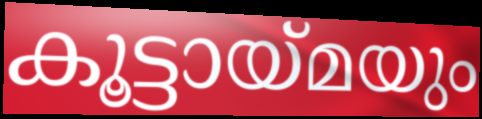
കൂട്ടായ്മയും